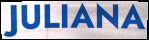
JULIANA